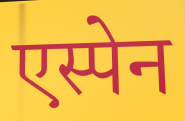
एस्पेन